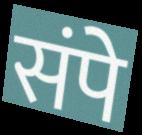
संपे